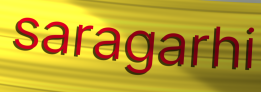
saragarhi